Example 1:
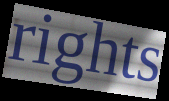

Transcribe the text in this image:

rights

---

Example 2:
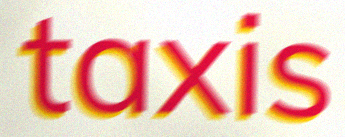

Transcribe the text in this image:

taxis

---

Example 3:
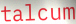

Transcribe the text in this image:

talcum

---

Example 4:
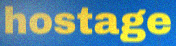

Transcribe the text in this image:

hostage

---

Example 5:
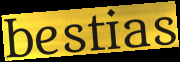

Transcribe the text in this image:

bestias